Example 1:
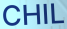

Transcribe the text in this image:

CHIL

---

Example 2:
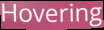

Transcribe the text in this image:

Hovering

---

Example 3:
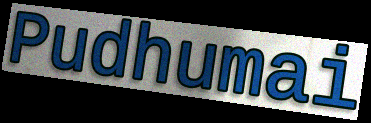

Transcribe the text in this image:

Pudhumai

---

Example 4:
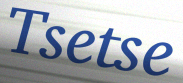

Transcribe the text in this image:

Tsetse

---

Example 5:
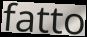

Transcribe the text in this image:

fatto